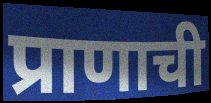
प्राणाची